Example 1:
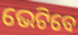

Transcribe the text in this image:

ଭେଟିବେ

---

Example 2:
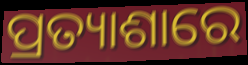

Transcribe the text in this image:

ପ୍ରତ୍ୟାଶାରେ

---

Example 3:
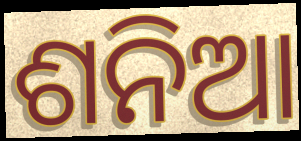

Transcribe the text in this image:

ଶନିଆ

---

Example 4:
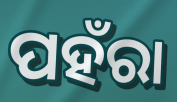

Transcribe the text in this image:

ପହଁରା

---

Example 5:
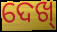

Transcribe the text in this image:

ଦେଖ୍